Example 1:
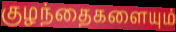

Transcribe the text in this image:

குழந்தைகளையும்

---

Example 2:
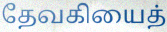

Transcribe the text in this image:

தேவகியைத்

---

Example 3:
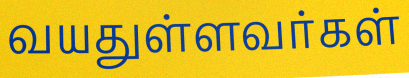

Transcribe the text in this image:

வயதுள்ளவர்கள்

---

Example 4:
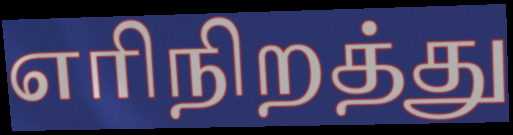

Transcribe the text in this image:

எரிநிறத்து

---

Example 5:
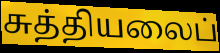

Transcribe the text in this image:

சுத்தியலைப்